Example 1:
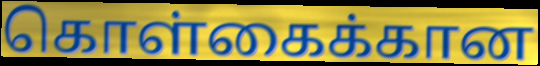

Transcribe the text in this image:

கொள்கைக்கான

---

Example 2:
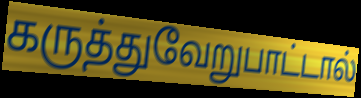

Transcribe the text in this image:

கருத்துவேறுபாட்டால்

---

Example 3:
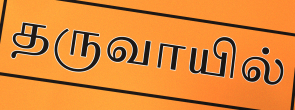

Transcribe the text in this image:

தருவாயில்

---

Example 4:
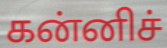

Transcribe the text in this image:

கன்னிச்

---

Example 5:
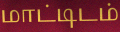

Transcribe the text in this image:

மாட்டிடம்